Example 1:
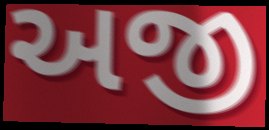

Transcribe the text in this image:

અજી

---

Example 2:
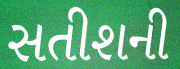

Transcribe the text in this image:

સતીશની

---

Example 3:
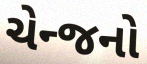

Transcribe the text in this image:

ચેન્જનો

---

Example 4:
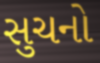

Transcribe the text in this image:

સુચનો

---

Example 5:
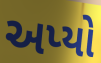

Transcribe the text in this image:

અપ્યો